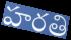
హరతి